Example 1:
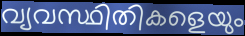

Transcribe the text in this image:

വ്യവസ്ഥിതികളെയും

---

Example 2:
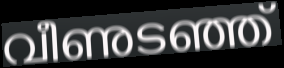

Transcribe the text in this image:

വീണുടഞ്ഞ്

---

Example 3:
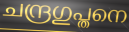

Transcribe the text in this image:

ചന്ദ്രഗുപ്തനെ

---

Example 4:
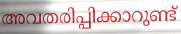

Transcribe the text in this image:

അവതരിപ്പിക്കാറുണ്ട്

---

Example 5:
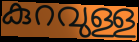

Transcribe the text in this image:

കുറവുള്ള